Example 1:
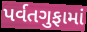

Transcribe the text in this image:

પર્વતગુફામાં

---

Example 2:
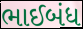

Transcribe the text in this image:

ભાઈબંધ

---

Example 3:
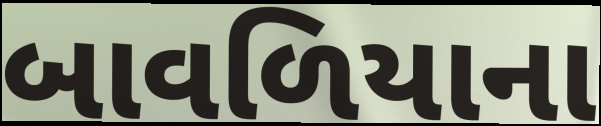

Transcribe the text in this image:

બાવળિયાના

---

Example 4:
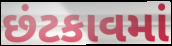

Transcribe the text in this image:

છંટકાવમાં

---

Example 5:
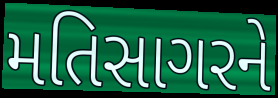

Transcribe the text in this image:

મતિસાગરને